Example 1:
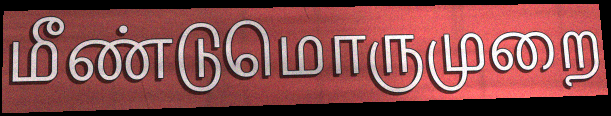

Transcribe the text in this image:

மீண்டுமொருமுறை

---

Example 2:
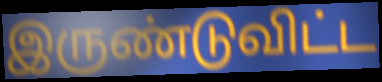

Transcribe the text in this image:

இருண்டுவிட்ட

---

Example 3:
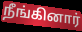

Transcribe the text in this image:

நீங்கினார்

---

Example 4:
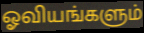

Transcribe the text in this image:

ஓவியங்களும்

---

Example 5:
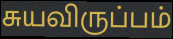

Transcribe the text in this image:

சுயவிருப்பம்